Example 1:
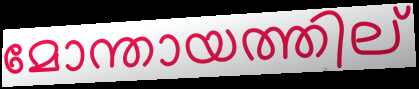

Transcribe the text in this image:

മോന്തായത്തില്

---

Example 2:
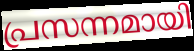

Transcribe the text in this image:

പ്രസന്നമായി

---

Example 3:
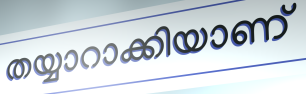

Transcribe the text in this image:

തയ്യാറാക്കിയാണ്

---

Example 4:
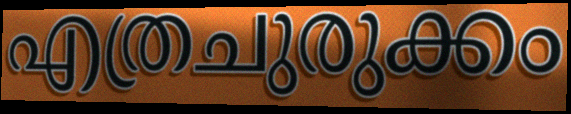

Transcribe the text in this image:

എത്രചുരുക്കം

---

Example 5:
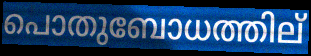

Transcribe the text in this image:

പൊതുബോധത്തില്